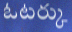
ఓటర్కు